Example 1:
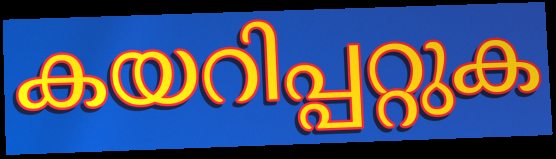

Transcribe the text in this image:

കയറിപ്പറ്റുക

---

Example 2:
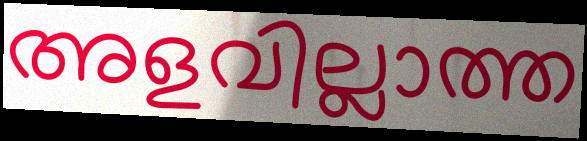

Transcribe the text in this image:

അളവില്ലാത്ത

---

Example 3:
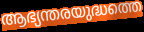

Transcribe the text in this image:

ആഭ്യന്തരയുദ്ധത്തെ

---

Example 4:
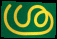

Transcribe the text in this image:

ശ്ര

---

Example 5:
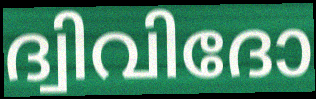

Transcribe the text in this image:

ദ്വിവിദോ